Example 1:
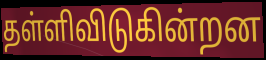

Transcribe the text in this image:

தள்ளிவிடுகின்றன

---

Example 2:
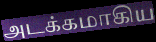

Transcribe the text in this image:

அடக்கமாகிய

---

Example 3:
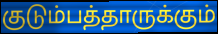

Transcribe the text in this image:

குடும்பத்தாருக்கும்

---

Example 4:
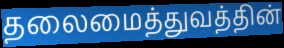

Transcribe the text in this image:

தலைமைத்துவத்தின்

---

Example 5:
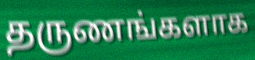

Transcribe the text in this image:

தருணங்களாக